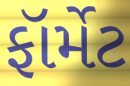
ફૉર્મેટ